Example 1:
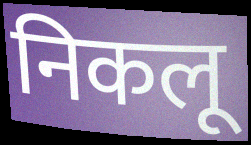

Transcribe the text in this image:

निकलू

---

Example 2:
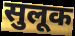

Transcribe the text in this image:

सुलूक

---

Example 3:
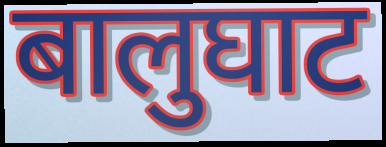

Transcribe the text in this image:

बालुघाट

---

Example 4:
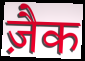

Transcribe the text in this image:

ज़ैक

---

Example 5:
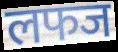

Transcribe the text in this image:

लफज